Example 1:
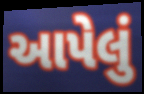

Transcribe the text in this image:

આપેલું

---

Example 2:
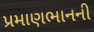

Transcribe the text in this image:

પ્રમાણભાનની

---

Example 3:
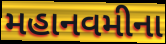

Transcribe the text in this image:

મહાનવમીના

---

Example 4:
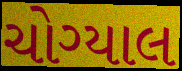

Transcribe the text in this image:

ચોગ્યાલ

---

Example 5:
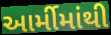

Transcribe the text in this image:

આર્મીમાંથી